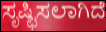
ಸೃಷ್ಟಿಸಲಾಗಿದೆ